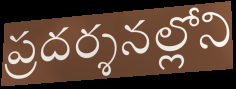
ప్రదర్శనల్లోని